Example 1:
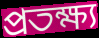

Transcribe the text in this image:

প্ৰতক্ষ্য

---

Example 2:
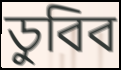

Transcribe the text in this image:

ডুবিব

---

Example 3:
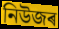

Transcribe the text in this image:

নিউজৰ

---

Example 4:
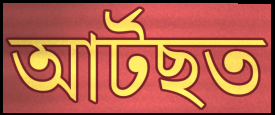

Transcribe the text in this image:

আৰ্টছত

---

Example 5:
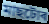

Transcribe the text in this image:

মাছটোৰ